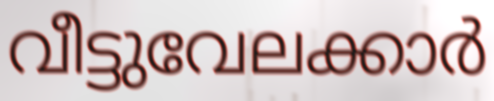
വീട്ടുവേലക്കാർ